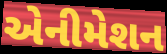
એનીમેશન